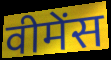
वीमेंस